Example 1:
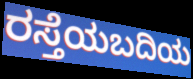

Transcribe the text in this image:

ರಸ್ತೆಯಬದಿಯ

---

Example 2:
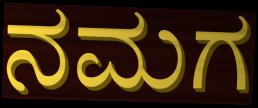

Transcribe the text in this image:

ನಮಗ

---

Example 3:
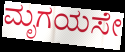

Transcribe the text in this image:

ಮೃಗಯಸೇ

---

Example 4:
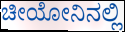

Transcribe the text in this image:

ಚೀಯೋನಿನಲ್ಲಿ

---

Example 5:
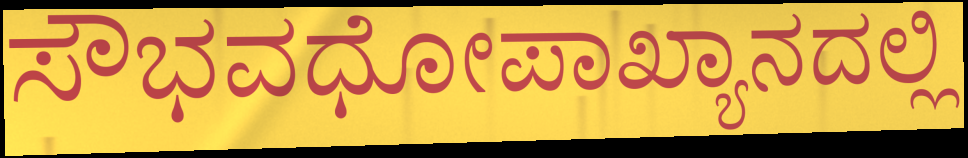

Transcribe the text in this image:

ಸೌಭವಧೋಪಾಖ್ಯಾನದಲ್ಲಿ